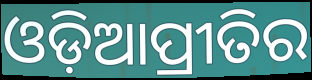
ଓଡ଼ିଆପ୍ରୀତିର